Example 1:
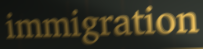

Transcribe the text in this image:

immigration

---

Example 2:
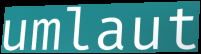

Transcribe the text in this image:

umlaut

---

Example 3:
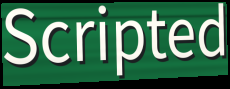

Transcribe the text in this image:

Scripted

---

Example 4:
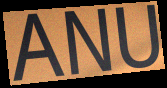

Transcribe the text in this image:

ANU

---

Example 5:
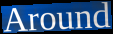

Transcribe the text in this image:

Around